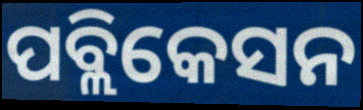
ପବ୍ଲିକେସନ